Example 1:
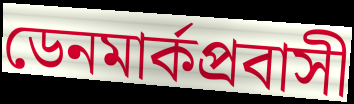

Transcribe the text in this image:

ডেনমার্কপ্রবাসী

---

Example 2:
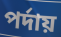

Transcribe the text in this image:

পর্দায়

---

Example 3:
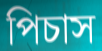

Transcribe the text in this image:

পিচাস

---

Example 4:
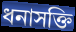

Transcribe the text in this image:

ধনাসক্তি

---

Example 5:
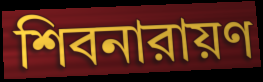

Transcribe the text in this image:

শিবনারায়ণ